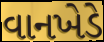
વાનખેડે